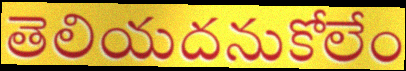
తెలియదనుకోలేం